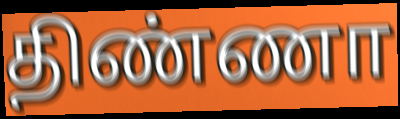
திண்ணா